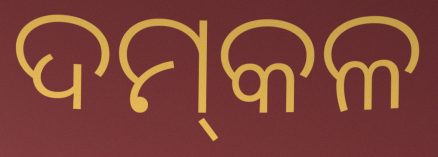
ଦମ୍‌କଳ